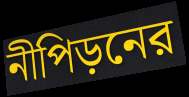
নীপিড়নের